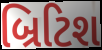
બ્રિટિશ